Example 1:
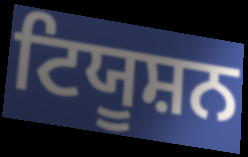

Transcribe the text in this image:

ਟਿਯੂਸ਼ਨ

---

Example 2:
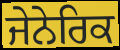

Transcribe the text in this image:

ਜੇਨੇਰਿਕ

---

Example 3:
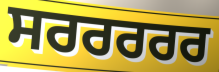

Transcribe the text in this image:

ਸਰਰਰਰਰ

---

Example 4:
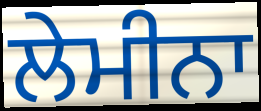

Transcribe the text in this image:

ਲੇਮੀਨਾ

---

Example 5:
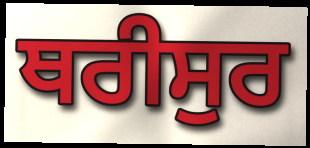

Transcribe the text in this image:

ਥਰੀਸੁਰ